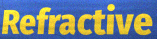
Refractive